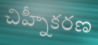
చిహ్నీకరణ